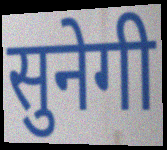
सुनेगी